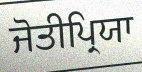
ਜੋਤੀਪ੍ਰਿਯਾ